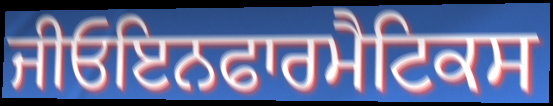
ਜੀਓਇਨਫਾਰਮੈਟਿਕਸ